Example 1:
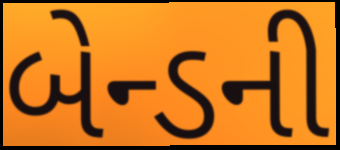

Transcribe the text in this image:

બેન્ડની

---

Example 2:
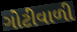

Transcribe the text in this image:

ગોટીવાળી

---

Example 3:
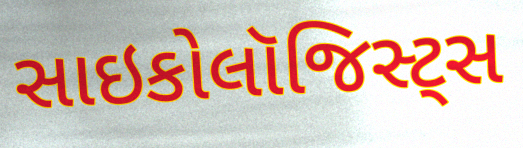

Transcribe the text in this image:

સાઇકોલૉજિસ્ટ્સ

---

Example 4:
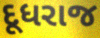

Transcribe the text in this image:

દૂધરાજ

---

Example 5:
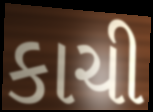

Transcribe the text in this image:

કાચી